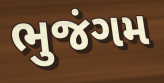
ભુજંગમ